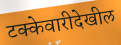
टक्केवारीदेखील